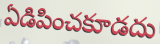
ఏడిపించకూడదు